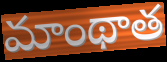
మాంథాత